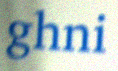
ghni